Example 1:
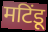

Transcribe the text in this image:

मटिंडू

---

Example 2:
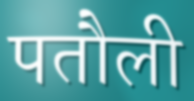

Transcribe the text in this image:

पतौली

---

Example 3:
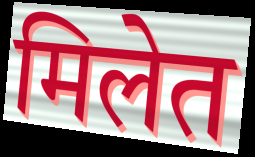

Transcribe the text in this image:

मिलेत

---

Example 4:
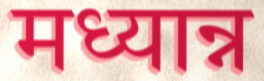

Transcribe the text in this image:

मध्यान्न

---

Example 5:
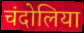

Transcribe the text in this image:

चंदोलिया